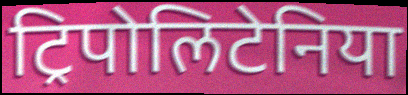
ट्रिपोलिटेनिया